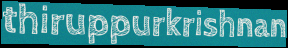
thiruppurkrishnan